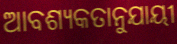
ଆବଶ୍ୟକତାନୁଯାୟୀ